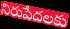
నిరుపేదలకు